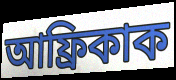
আফ্ৰিকাক